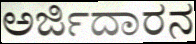
ಅರ್ಜಿದಾರನ